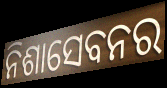
ନିଶାସେବନର